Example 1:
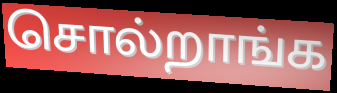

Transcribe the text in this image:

சொல்றாங்க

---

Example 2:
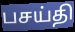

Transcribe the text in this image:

பசய்தி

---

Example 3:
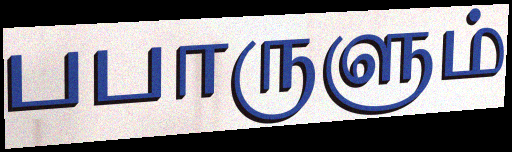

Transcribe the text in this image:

பபாருளும்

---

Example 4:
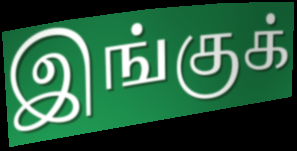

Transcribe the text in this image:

இங்குக்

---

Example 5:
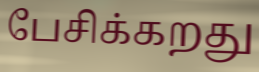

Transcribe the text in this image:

பேசிக்கறது